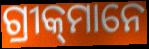
ଗ୍ରୀକ୍‌ମାନେ